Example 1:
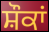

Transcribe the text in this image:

ਸ਼ੌਕਾਂ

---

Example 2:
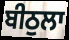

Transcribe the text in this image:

ਬੀਠੁਲਾ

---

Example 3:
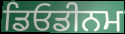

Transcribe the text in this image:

ਡਿਓਡੀਨਮ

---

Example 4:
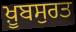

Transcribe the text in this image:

ਖ਼ੂਬਸੁਰਤ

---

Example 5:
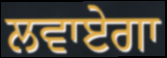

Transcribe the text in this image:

ਲਵਾਏਗਾ